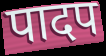
पादप